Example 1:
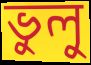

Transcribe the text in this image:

ভুলু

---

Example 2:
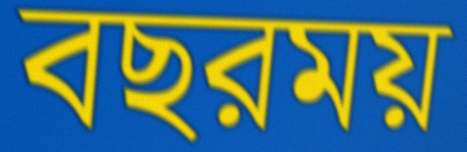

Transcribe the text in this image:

বছরময়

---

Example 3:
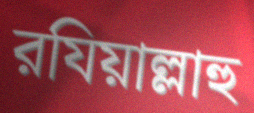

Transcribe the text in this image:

রযিয়াল্লাহু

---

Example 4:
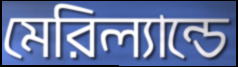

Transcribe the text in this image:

মেরিল্যান্ডে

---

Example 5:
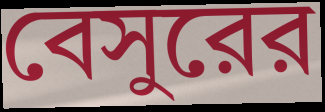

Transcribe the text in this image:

বেসুরের